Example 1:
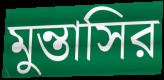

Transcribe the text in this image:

মুন্তাসির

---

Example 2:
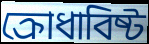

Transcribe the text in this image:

ক্রোধাবিষ্ট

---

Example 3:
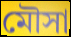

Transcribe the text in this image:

মৌসা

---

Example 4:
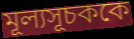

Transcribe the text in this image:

মূল্যসূচককে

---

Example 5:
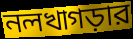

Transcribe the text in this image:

নলখাগড়ার